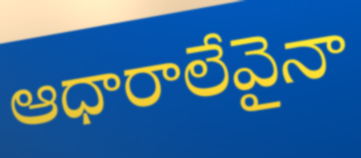
ఆధారాలేవైనా